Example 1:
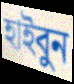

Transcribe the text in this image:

হাইবুন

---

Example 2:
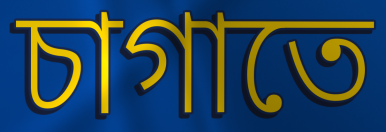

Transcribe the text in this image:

চাগাতে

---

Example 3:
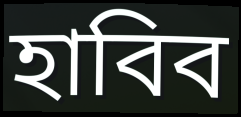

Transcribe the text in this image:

হাবিব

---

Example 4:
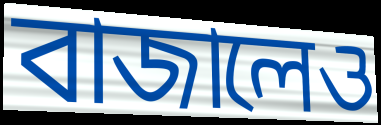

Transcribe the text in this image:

বাজালেও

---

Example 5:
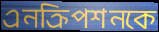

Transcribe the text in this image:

এনক্রিপশনকে